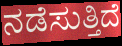
ನಡೆಸುತ್ತಿದೆ